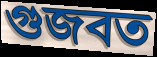
গুজবত